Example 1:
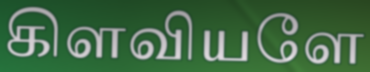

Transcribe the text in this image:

கிளவியளே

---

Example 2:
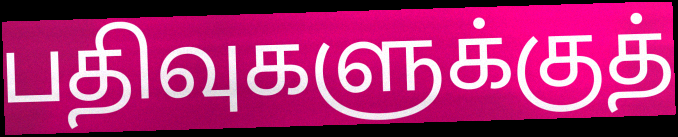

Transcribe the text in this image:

பதிவுகளுக்குத்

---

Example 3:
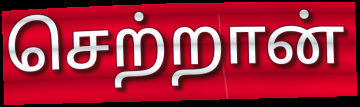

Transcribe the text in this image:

செற்றான்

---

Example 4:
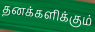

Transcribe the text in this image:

தனக்களிக்கும்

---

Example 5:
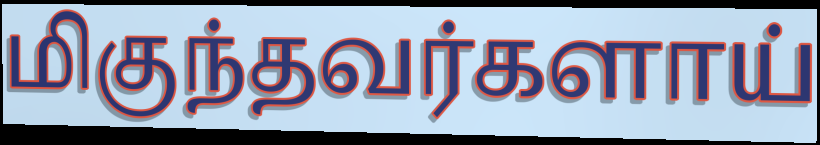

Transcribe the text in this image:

மிகுந்தவர்களாய்